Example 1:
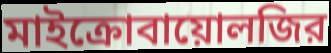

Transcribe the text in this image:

মাইক্রোবায়োলজির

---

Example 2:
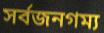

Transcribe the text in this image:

সর্বজনগম্য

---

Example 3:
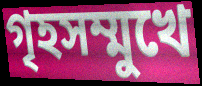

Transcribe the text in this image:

গৃহসম্মুখে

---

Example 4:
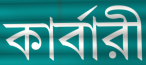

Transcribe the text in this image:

কার্বারী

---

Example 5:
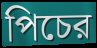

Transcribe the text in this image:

পিচের